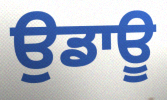
ਉਡਾਊ